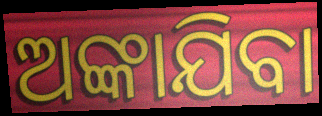
ଅଙ୍କାଯିବା